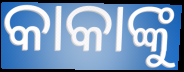
କାକାଙ୍କୁ